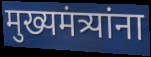
मुख्यमंत्र्यांना